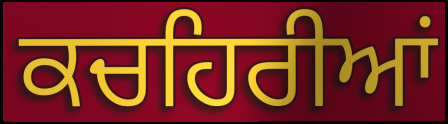
ਕਚਹਿਰੀਆਂ